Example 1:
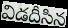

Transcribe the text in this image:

విడదీసిన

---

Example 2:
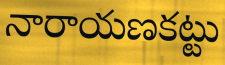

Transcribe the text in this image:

నారాయణకట్టు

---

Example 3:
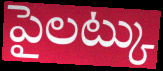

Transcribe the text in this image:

పైలట్కు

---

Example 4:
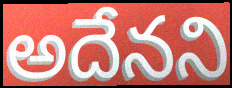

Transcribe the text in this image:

అదేనని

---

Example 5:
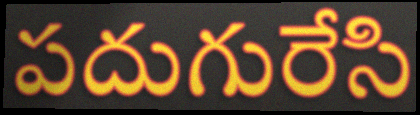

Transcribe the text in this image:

పదుగురేసి